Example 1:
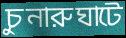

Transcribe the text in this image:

চুনারুঘাটে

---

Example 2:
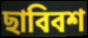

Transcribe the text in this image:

ছাবিবশ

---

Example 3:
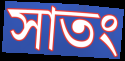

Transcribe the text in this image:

সাতং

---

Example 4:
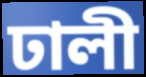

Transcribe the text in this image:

ঢালী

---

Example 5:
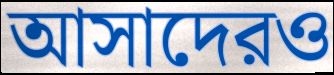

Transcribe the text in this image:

আসাদেরও